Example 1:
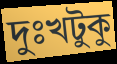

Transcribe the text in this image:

দুঃখটুকু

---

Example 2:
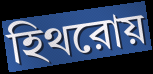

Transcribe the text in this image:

হিথরোয়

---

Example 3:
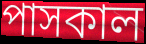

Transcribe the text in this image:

পাসকাল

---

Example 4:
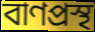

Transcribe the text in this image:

বাণপ্রস্থ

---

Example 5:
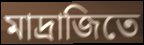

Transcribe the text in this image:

মাদ্রাজিতে